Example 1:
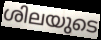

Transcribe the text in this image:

ശിലയുടെ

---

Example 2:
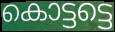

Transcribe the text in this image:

കൊട്ടട്ടെ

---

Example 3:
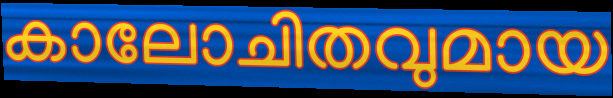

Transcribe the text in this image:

കാലോചിതവുമായ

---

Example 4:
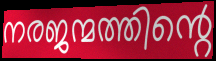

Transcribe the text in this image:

നരജന്മത്തിന്റെ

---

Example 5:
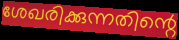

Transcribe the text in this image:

ശേഖരിക്കുന്നതിന്റെ